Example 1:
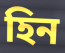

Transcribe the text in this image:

হিন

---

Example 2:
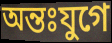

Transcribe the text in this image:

অন্তঃযুগে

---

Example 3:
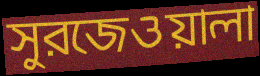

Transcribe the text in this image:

সুরজেওয়ালা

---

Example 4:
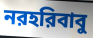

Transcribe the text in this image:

নরহরিবাবু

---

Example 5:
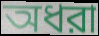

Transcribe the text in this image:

অধরা